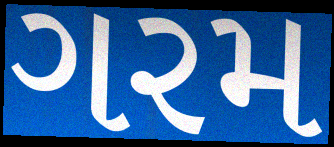
ગરમ